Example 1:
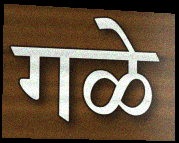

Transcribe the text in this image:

गळे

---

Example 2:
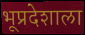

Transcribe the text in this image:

भूप्रदेशाला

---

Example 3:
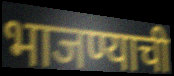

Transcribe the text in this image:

भाजण्याची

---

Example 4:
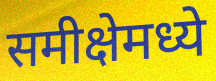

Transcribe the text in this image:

समीक्षेमध्ये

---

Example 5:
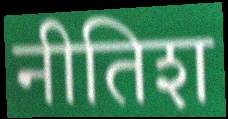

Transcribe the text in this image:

नीतिश